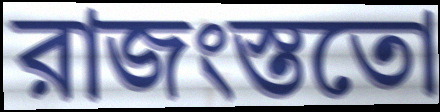
রাজংস্ততো